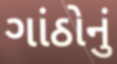
ગાંઠોનું